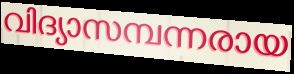
വിദ്യാസമ്പന്നരായ